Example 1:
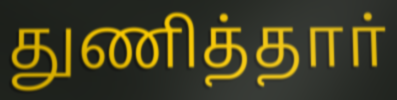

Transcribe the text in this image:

துணித்தார்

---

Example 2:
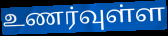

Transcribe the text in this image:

உணர்வுள்ள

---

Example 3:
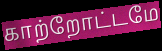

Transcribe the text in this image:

காற்றோட்டமே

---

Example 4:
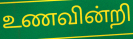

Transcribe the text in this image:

உணவின்றி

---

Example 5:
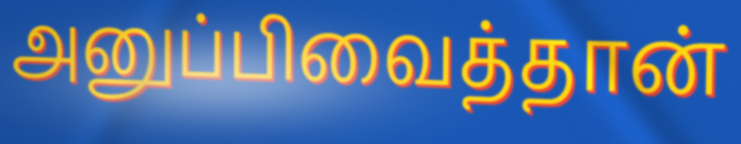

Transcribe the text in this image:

அனுப்பிவைத்தான்